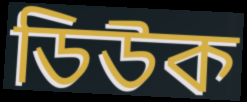
ডিউক